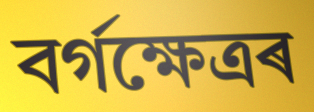
বৰ্গক্ষেত্ৰৰ